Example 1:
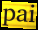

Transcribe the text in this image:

pai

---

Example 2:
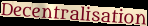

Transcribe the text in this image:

Decentralisation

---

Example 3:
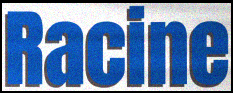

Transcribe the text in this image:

Racine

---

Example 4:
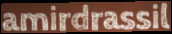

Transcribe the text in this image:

amirdrassil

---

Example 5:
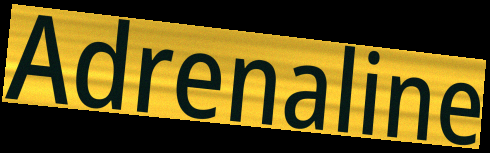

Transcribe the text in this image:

Adrenaline